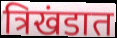
त्रिखंडात